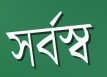
সর্বস্ব